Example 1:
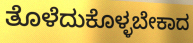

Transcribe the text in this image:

ತೊಳೆದುಕೊಳ್ಳಬೇಕಾದ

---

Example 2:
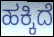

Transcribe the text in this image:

ಹಕ್ಕಿದೆ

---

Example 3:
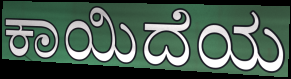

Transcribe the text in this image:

ಕಾಯಿದೆಯ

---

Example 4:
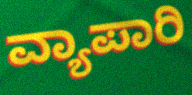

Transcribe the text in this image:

ವ್ಯಾಪಾರಿ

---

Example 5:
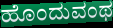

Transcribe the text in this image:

ಹೊಂದುವಂಥ